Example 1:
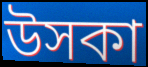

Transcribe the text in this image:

উসকা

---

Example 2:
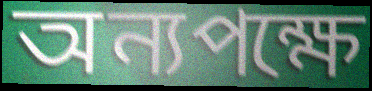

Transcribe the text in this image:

অন্যপক্ষে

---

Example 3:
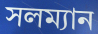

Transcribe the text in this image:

সলম্যান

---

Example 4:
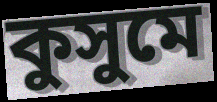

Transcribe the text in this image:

কুসুমে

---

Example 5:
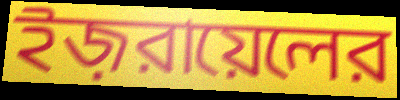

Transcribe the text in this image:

ইজ়রায়েলের